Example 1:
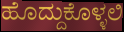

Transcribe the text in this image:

ಹೊದ್ದುಕೊಳ್ಳಲಿ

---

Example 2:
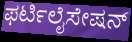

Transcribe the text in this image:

ಫರ್ಟಿಲೈಸೇಷನ್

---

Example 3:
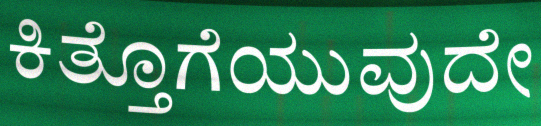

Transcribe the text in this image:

ಕಿತ್ತೊಗೆಯುವುದೇ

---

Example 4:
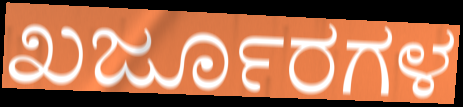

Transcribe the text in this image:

ಖರ್ಜೂರಗಳ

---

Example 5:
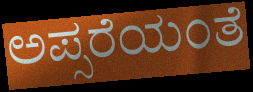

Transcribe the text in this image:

ಅಪ್ಸರೆಯಂತೆ